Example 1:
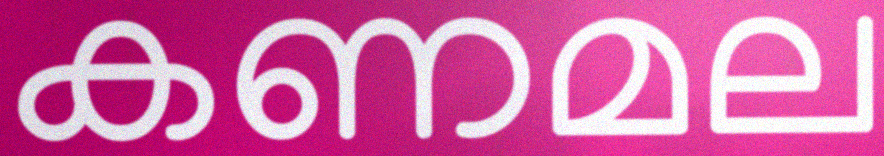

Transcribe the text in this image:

കണമല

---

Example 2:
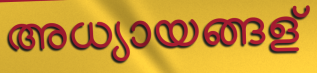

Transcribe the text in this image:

അധ്യായങ്ങള്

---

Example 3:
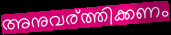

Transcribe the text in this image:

അനുവര്ത്തിക്കണം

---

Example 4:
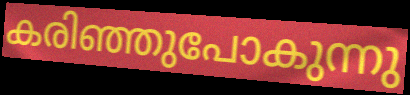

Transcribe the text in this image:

കരിഞ്ഞുപോകുന്നു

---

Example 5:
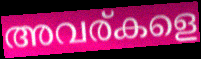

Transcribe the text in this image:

അവര്കളെ